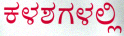
ಕಳಶಗಳಲ್ಲಿ